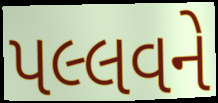
પલ્લવને